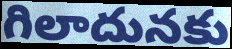
గిలాదునకు